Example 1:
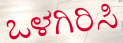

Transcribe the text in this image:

ಒಳಗಿರಿಸಿ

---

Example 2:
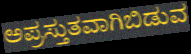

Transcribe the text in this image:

ಅಪ್ರಸ್ತುತವಾಗಿಬಿಡುವ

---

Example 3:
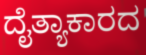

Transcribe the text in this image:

ದೈತ್ಯಾಕಾರದ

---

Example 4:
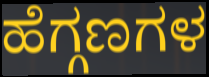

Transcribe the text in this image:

ಹೆಗ್ಗಣಗಳ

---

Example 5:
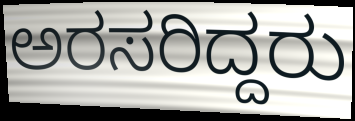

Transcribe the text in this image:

ಅರಸರಿದ್ದರು